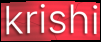
krishi